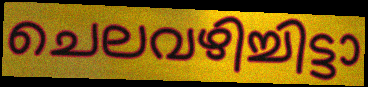
ചെലവഴിച്ചിട്ടാ